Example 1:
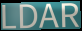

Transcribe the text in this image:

LDAR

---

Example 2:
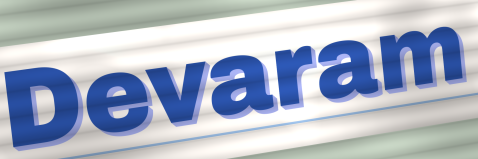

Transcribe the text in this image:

Devaram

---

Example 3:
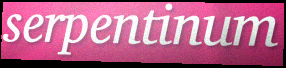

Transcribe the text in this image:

serpentinum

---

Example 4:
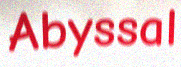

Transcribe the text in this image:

Abyssal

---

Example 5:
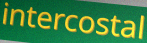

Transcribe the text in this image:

intercostal